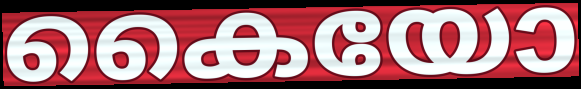
കൈയോ